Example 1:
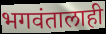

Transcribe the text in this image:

भगवंतालाही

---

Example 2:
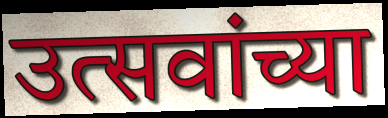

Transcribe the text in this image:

उत्सवांच्या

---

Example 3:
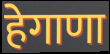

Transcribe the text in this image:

हेगाणा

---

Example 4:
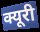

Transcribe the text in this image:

क्यूरी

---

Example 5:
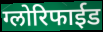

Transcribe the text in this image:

ग्लोरिफाईड